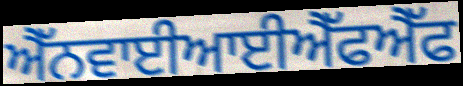
ਐੱਨਵਾਈਆਈਐੱਫਐੱਫ